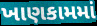
ખાણકામમાં